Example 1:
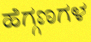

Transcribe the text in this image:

ಹೆಗ್ಗಣಗಳ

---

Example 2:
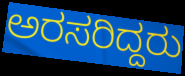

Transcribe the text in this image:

ಅರಸರಿದ್ದರು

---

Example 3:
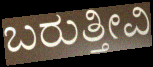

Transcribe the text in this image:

ಬರುತ್ತೀವಿ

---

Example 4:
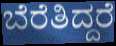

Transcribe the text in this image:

ಬೆರೆತಿದ್ದರೆ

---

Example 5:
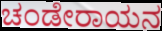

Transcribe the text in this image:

ಚಂಡೇರಾಯನ